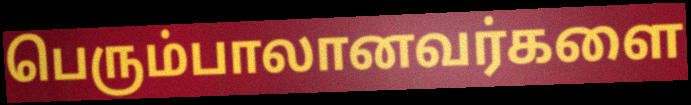
பெரும்பாலானவர்களை